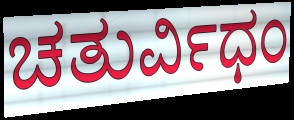
ಚತುರ್ವಿಧಂ